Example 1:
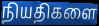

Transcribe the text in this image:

நியதிகளை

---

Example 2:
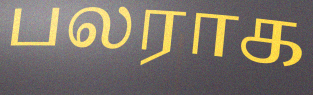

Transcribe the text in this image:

பலராக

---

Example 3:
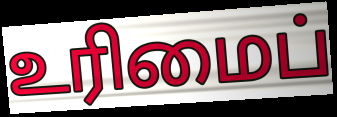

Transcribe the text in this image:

உரிமைப்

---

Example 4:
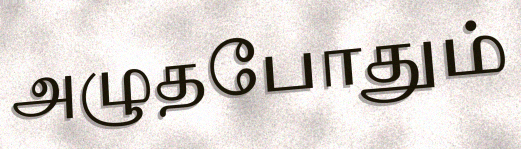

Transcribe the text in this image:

அழுதபோதும்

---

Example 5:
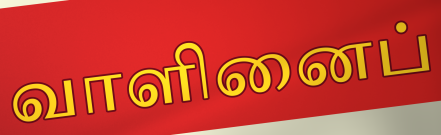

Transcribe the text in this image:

வாளினைப்